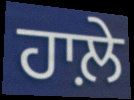
ਹਾਲ਼ੇ